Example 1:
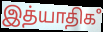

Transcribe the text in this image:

இத்யாதிகஂ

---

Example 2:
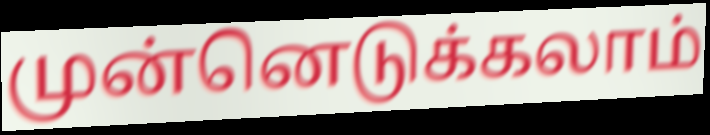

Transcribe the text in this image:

முன்னெடுக்கலாம்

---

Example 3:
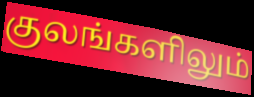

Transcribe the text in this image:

குலங்களிலும்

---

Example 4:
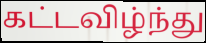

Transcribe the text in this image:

கட்டவிழ்ந்து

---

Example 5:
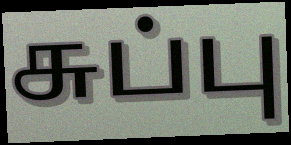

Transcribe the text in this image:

சுப்பு